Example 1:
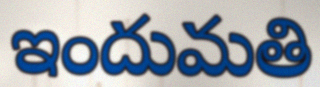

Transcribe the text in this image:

ఇందుమతి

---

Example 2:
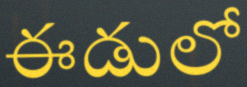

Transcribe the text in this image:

ఈడులో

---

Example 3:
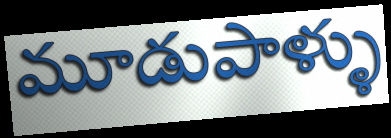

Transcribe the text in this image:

మూడుపాళ్ళు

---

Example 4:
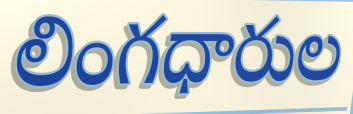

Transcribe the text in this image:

లింగధారుల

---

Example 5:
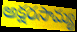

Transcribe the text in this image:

అక్షరసామ్య